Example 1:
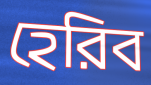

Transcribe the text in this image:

হেরিব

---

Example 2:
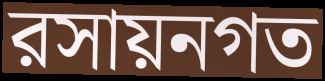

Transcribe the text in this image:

রসায়নগত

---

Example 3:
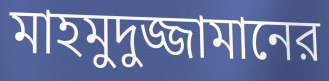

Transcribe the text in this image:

মাহমুদুজ্জামানের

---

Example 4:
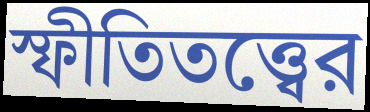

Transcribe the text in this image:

স্ফীতিতত্ত্বের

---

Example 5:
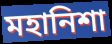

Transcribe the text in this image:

মহানিশা